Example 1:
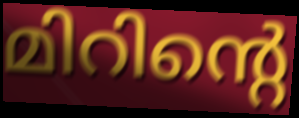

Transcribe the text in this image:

മിറിന്റെ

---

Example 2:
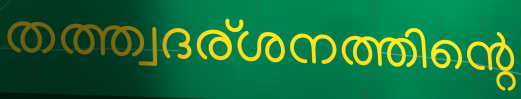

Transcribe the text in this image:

തത്ത്വദര്ശനത്തിന്റെ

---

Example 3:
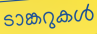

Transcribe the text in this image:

ടാങ്കറുകൾ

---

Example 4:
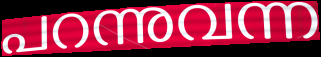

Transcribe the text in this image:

പറന്നുവന്ന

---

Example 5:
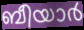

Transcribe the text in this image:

ബീയാർ